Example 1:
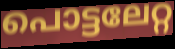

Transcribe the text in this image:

പൊട്ടലേറ്റ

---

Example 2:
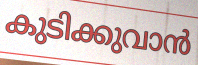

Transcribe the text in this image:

കുടിക്കുവാൻ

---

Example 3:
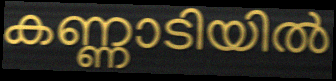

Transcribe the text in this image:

കണ്ണാടിയിൽ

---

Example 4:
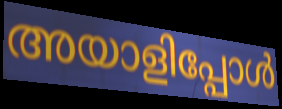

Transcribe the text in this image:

അയാളിപ്പോൾ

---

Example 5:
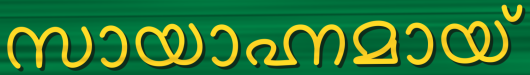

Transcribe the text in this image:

സായാഹ്നമായ്